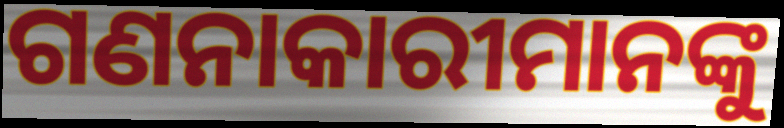
ଗଣନାକାରୀମାନଙ୍କୁ